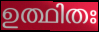
ഉത്ഥിതഃ